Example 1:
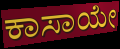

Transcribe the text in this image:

ಕಾಸಾಯೇ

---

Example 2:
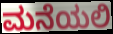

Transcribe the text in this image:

ಮನೆಯಲಿ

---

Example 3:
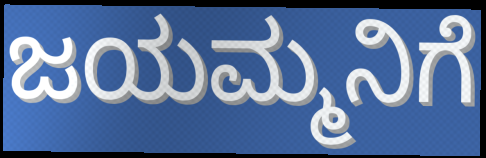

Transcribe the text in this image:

ಜಯಮ್ಮನಿಗೆ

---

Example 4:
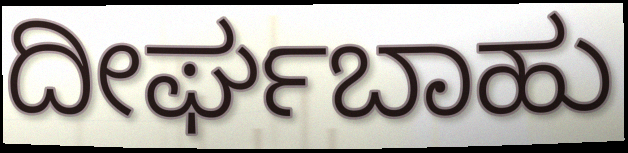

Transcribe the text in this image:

ದೀರ್ಘಬಾಹು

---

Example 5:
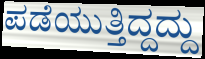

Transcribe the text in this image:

ಪಡೆಯುತ್ತಿದ್ದದ್ದು